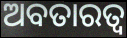
ଅବତାରତ୍ୱ